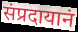
संप्रदायानं